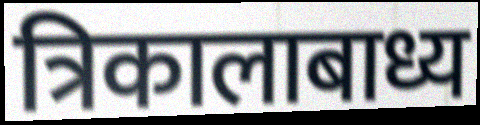
त्रिकालाबाध्य